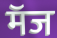
मॅज